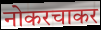
नोकरचाकर